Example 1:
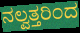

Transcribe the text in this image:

ನಲ್ವತ್ತರಿಂದ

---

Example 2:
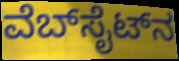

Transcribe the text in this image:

ವೆಬ್‍ಸೈಟ್‍ನ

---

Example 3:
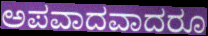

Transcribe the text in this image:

ಅಪವಾದವಾದರೂ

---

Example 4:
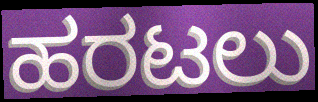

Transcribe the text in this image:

ಹರಟಲು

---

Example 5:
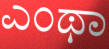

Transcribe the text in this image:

ಎಂಥಾ